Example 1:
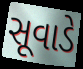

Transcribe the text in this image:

સૂવાડે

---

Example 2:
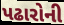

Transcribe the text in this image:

પઢારોની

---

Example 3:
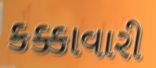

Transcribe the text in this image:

કક્કાવારી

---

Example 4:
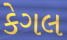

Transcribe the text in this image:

કેગલ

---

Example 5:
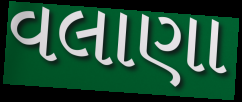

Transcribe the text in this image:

વલાણા